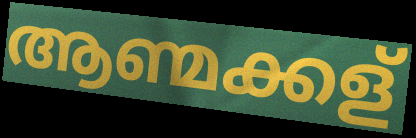
ആണ്മക്കള്